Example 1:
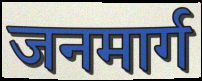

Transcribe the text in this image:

जनमार्ग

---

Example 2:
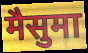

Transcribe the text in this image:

मैसुमा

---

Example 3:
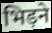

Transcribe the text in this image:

भिड़ने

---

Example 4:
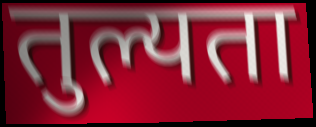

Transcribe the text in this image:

तुल्यता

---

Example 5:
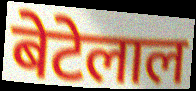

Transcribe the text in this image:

बेटेलाल